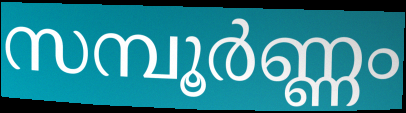
സമ്പൂർണ്ണം